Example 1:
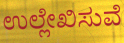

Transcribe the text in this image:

ಉಲ್ಲೇಖಿಸುವೆ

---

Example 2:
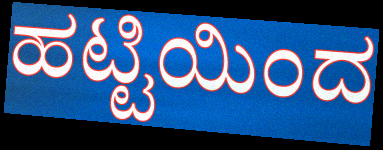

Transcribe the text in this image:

ಹಟ್ಟಿಯಿಂದ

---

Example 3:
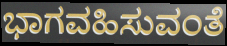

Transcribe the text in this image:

ಭಾಗವಹಿಸುವಂತೆ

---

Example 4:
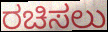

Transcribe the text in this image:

ರಚಿಸಲು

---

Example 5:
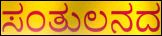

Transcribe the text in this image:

ಸಂತುಲನದ